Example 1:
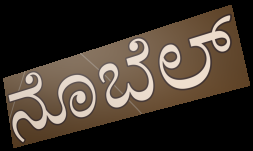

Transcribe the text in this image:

ನೊಬೆಲ್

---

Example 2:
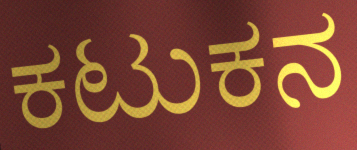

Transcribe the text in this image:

ಕಟುಕನ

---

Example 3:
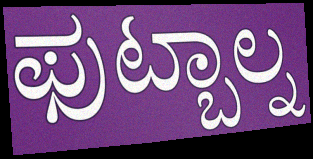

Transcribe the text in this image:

ಫುಟ್ಬಾಲ್ನ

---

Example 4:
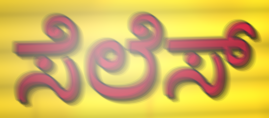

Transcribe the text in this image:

ಸೆಲೆಸ್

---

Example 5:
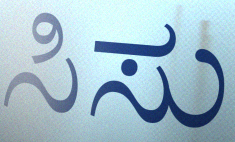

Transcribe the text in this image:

ಸಿಸು